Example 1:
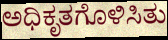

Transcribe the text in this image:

ಅಧಿಕೃತಗೊಳಿಸಿತು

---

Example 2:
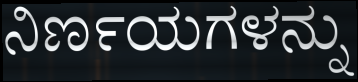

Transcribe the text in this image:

ನಿರ್ಣಯಗಳನ್ನು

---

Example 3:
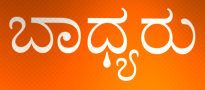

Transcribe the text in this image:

ಬಾಧ್ಯರು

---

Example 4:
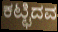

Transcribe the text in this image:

ಕಟ್ಟಿದವ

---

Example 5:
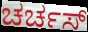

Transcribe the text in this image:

ಚರ್ಚಸ್